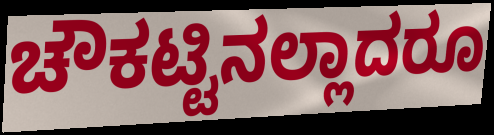
ಚೌಕಟ್ಟಿನಲ್ಲಾದರೂ